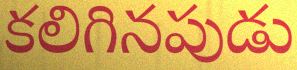
కలిగినపుడు